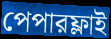
পেপারফ্লাই